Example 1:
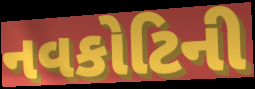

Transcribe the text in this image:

નવકોટિની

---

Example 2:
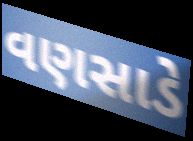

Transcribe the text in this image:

વણસાડે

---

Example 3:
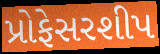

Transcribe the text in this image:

પ્રોફેસરશીપ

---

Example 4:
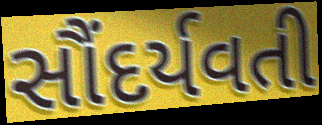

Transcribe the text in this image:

સૌંદર્યવતી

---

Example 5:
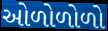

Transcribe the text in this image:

ઓળોળોળો